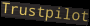
Trustpilot